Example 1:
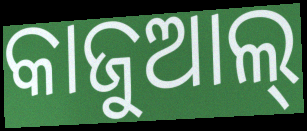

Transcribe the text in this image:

କାଜୁଆଲ୍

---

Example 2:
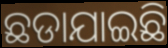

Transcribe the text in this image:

ଛଡାଯାଇଛି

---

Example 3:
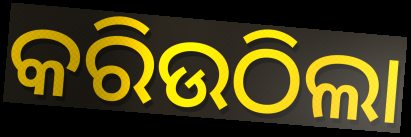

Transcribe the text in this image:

କରିଉଠିଲା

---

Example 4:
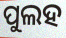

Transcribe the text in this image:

ପୁଲହ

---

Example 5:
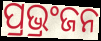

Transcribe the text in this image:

ପ୍ରଭ୍ରଂଜନ